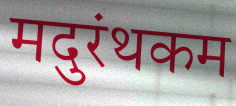
मदुरंथकम